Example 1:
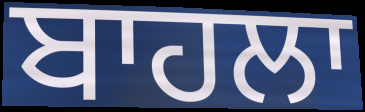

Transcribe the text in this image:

ਬਾਹਲਾ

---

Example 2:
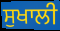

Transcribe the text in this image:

ਸੁਖਾਲੀ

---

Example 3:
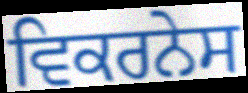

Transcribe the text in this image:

ਵਿਕਰਨੇਸ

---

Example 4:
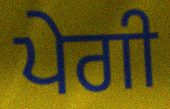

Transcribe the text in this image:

ਪੇਗੀ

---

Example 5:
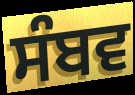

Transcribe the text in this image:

ਸੰਬਵ